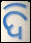
ଦି